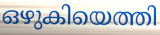
ഒഴുകിയെത്തി